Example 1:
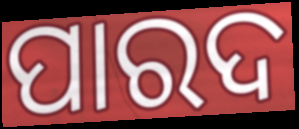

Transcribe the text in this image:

ପାରଦ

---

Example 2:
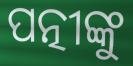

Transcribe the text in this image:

ପତ୍ନୀଙ୍କୁ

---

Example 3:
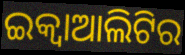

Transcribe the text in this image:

ଇକ୍ୱାଆଲିଟିର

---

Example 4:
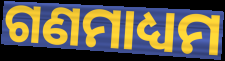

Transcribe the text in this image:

ଗଣମାଧ୍ୟମ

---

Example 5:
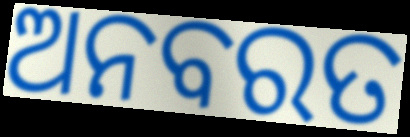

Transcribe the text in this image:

ଅନବରତ